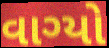
વાગ્યો